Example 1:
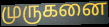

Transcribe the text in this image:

முருகனை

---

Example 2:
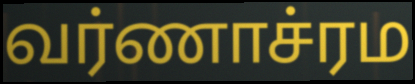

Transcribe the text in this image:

வர்ணாச்ரம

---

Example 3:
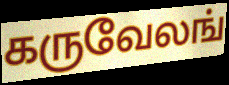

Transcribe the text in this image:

கருவேலங்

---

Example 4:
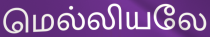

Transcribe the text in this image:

மெல்லியலே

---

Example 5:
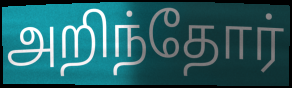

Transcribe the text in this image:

அறிந்தோர்